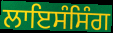
ਲਾਇਸੰਸਿੰਗ